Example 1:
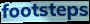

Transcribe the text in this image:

footsteps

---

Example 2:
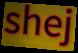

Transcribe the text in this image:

shej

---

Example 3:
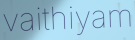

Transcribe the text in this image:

vaithiyam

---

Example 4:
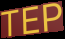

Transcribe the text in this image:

TEP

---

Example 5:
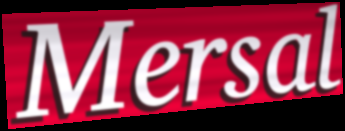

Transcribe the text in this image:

Mersal